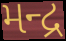
મન્દ્ર